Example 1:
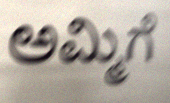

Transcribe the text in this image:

ಅಮ್ಮಿಗೆ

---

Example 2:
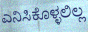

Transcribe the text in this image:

ಎನಿಸಿಕೊಳ್ಳಲಿಲ್ಲ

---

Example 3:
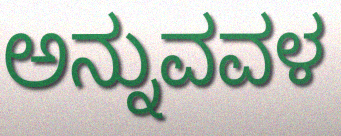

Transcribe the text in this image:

ಅನ್ನುವವಳ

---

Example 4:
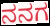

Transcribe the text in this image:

ನನಗ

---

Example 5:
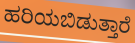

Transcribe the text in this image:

ಹರಿಯಬಿಡುತ್ತಾರೆ